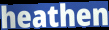
heathen